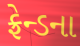
ફ્રેન્ડના